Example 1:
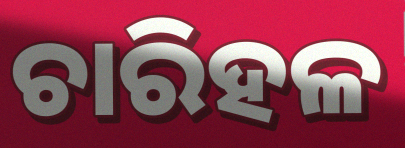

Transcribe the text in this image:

ଚାରିହଳ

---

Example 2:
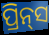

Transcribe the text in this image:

ପ୍ରିନ୍‍ସ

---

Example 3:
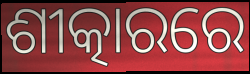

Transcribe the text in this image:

ଶୀତ୍କାରରେ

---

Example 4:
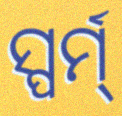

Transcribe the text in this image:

ସ୍ପର୍ମ୍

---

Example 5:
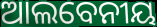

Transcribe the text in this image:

ଆଲବେନୀୟ